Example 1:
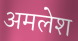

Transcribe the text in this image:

अमलेश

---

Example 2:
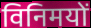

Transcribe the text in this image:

विनिमयों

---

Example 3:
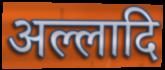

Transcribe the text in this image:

अल्लादि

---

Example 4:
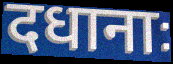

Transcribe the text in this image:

दधानाः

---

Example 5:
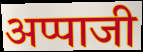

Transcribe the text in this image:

अप्पाजी